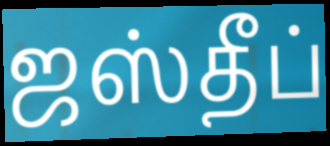
ஜஸ்தீப்